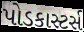
પોડકાસ્ટર્સ